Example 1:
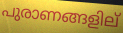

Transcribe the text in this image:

പുരാണങ്ങളില്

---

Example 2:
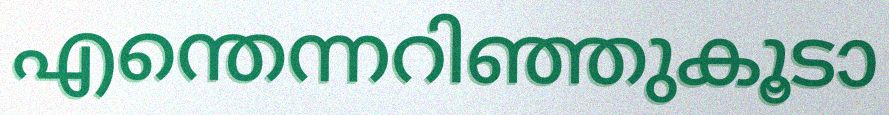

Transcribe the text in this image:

എന്തെന്നറിഞ്ഞുകൂടാ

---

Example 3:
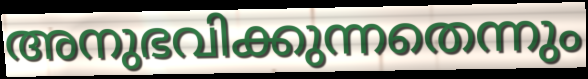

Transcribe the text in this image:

അനുഭവിക്കുന്നതെന്നും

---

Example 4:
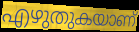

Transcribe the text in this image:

എഴുതുകയാണ്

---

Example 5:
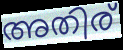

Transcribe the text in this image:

അതിര്